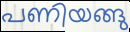
പണിയങ്ങു